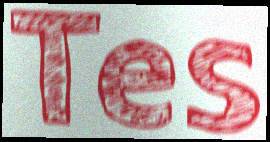
Tes